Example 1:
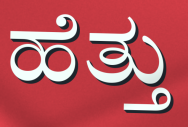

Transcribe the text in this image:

ಹೆತ್ತು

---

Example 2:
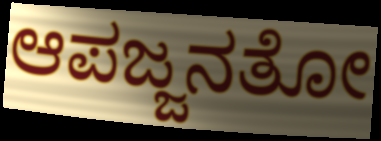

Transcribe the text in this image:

ಆಪಜ್ಜನತೋ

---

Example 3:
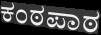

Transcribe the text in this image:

ಕಂಠಪಾಠ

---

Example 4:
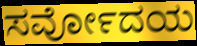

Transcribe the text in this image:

ಸರ್ವೋದಯ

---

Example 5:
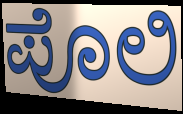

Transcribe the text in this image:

ಪೊಲಿ